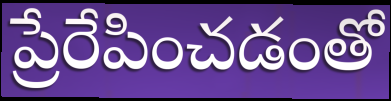
ప్రేరేపించడంతో